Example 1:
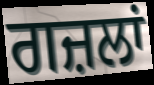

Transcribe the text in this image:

ਗਜ਼ਲਾਂ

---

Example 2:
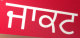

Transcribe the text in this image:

ਜਾਕਟ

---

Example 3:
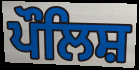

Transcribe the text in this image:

ਪੌਲਿਸ਼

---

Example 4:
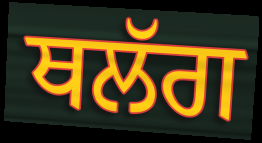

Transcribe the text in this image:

ਥਲੱਗ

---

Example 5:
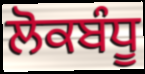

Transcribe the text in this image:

ਲੋਕਬੰਧੂ